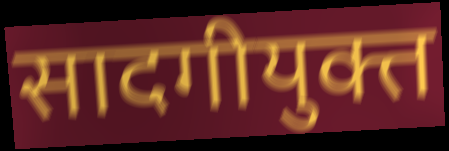
सादगीयुक्त